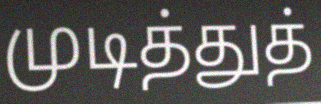
முடித்துத்